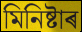
মিনিষ্টাৰ